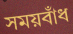
সময়বাঁধ